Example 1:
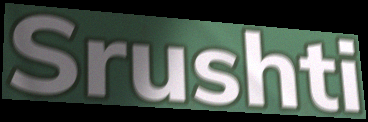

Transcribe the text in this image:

Srushti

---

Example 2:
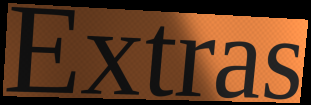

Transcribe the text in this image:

Extras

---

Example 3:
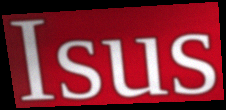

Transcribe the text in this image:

Isus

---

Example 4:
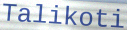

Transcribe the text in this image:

Talikoti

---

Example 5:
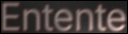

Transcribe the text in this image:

Entente